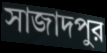
সাজাদপুর